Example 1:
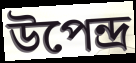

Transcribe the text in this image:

উপেন্দ্ৰ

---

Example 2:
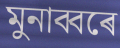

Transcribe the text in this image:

মুনাব্বৰে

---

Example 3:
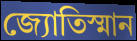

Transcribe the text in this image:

জ্যোতিস্মান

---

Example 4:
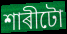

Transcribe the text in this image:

শাৰীটো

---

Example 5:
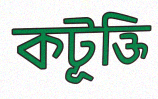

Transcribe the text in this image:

কটূক্তি